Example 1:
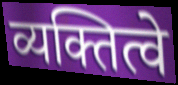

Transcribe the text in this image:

व्यक्तित्वे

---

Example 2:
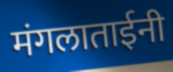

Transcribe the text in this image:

मंगलाताईनी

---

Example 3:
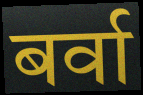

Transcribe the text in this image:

बर्वा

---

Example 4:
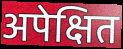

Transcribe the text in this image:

अपेक्षित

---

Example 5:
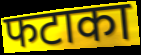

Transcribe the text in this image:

फटाका